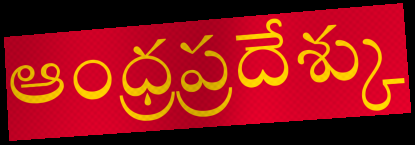
ఆంధ్రప్రదేశ్కు